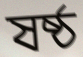
ষষ্ঠ